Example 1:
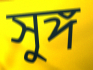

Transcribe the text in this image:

সুঙ্গ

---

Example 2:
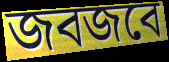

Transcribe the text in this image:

জবজবে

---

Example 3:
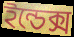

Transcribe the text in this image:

ইন্ডেক্স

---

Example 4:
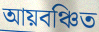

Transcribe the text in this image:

আয়বঞ্চিত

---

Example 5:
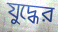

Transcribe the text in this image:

যুদ্ধের